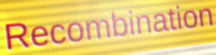
Recombination